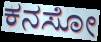
ಕನಸೋ